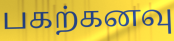
பகற்கனவு